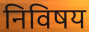
निविषय